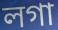
লগা